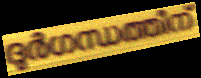
ദുർഗന്ധത്തിന്